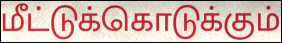
மீட்டுக்கொடுக்கும்